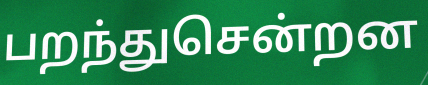
பறந்துசென்றன